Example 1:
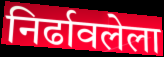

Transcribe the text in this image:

निर्ढावलेला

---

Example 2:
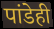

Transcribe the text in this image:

पांडेही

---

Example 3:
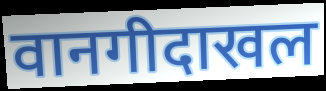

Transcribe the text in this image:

वानगीदाखल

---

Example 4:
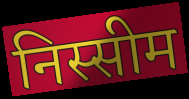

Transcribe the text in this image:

निस्सीम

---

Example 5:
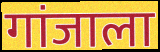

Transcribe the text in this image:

गांजाला